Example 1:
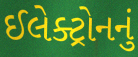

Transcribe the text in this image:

ઈલેક્ટ્રોનનું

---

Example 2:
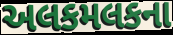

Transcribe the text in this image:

અલકમલકના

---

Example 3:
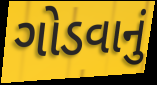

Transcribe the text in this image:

ગોડવાનું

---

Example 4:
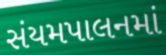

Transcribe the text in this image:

સંયમપાલનમાં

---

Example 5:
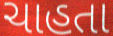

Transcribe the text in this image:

ચાહતા